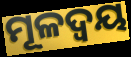
ମୂଳଦ୍ଵୟ